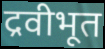
द्रवीभूत